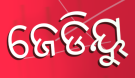
ଜେଡିୟୁ